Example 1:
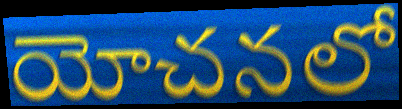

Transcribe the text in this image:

యోచనలో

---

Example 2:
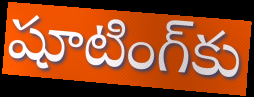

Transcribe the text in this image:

షూటింగ్‌కు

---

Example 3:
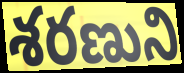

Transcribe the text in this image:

శరణుని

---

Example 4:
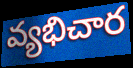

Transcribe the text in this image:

వ్యభిచార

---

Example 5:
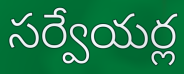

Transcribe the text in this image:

సర్వేయర్ల